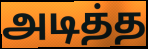
அடித்த